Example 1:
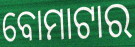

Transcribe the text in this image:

ବୋମାଟାର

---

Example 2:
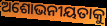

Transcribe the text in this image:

ଅଶୋଭନୀୟତାକୁ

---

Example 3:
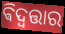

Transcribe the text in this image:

ଵିଦ୍ବତ୍ତାର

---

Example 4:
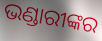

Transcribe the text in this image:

ଭଣ୍ଡାରୀଙ୍କର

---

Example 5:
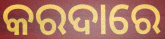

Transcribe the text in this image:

କରଦାରେ